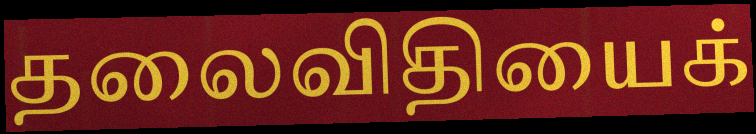
தலைவிதியைக்